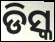
ଡିସ୍କ